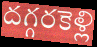
దగ్గరకెళ్లి